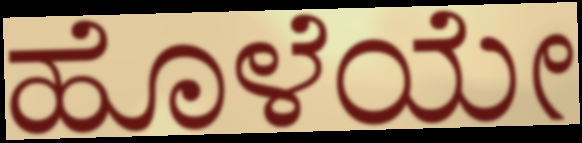
ಹೊಳೆಯೇ